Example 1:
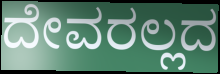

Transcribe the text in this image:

ದೇವರಲ್ಲದ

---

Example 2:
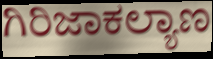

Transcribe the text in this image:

ಗಿರಿಜಾಕಲ್ಯಾಣ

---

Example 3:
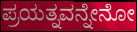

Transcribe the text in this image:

ಪ್ರಯತ್ನವನ್ನೇನೋ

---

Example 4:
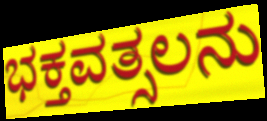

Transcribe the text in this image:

ಭಕ್ತವತ್ಸಲನು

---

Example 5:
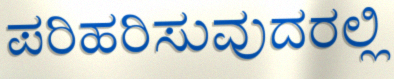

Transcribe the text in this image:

ಪರಿಹರಿಸುವುದರಲ್ಲಿ